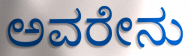
ಅವರೇನು